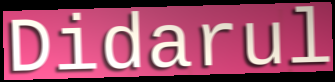
Didarul